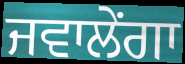
ਜਵਾਲੇਂਗਾ